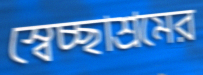
স্বেচ্ছাশ্রমের